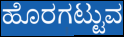
ಹೊರಗಟ್ಟುವ